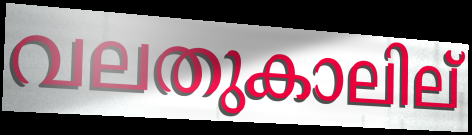
വലതുകാലില്